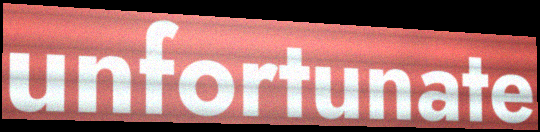
unfortunate